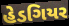
હેડગિયર